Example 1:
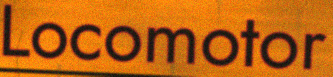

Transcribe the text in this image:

Locomotor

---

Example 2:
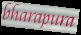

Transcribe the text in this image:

bharapura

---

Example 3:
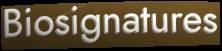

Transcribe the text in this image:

Biosignatures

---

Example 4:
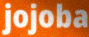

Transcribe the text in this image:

jojoba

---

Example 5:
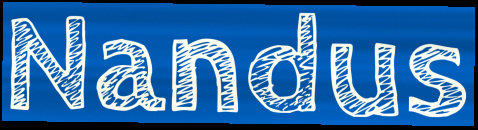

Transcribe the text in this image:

Nandus